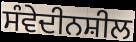
ਸੰਵੇਦੀਨਸ਼ੀਲ